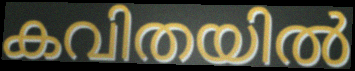
കവിതയിൽ